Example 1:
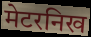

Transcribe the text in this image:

मेटरनिख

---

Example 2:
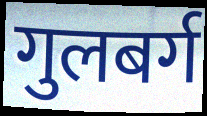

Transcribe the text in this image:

गुलबर्ग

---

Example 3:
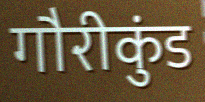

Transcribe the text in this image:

गौरीकुंड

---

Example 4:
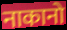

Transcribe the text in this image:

नाकानो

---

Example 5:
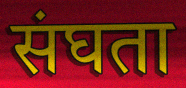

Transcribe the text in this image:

संघता